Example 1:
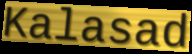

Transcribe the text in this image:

Kalasad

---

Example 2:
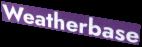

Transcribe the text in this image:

Weatherbase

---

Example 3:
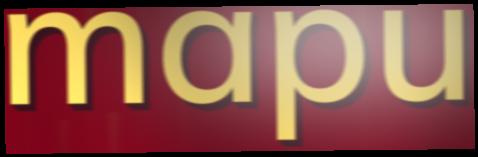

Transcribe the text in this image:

mapu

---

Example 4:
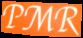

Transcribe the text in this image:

PMR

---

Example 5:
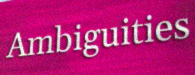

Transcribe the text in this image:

Ambiguities